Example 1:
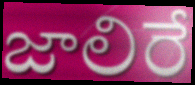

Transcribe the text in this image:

జాలిరే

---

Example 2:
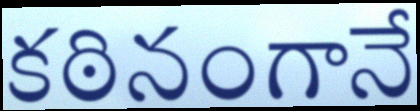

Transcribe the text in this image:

కఠినంగానే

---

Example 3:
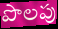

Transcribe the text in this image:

పొలపు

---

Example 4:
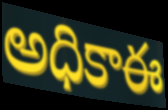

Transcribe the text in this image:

అధికాఈ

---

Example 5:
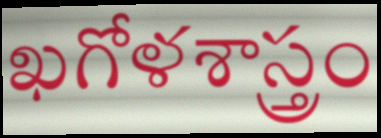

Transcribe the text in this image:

ఖగోళశాస్త్రం